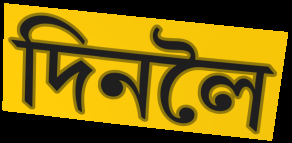
দিনলৈ